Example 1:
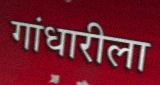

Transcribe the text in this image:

गांधारीला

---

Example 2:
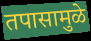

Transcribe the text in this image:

तपासामुळे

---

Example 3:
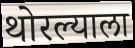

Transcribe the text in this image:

थोरल्याला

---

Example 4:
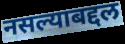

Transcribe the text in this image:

नसल्याबद्दल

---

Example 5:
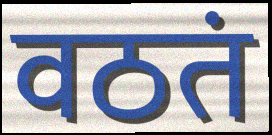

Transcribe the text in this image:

वठतं